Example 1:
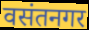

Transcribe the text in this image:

वसंतनगर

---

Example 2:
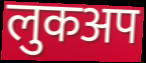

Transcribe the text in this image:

लुकअप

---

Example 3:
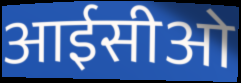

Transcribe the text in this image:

आईसीओ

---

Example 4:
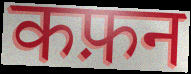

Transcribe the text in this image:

कफ़न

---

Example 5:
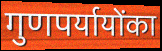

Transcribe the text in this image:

गुणपर्यायोंका